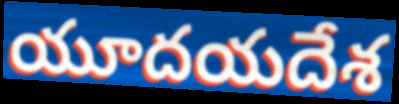
యూదయదేశ